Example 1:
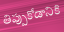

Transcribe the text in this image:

తిప్పుకోడానికి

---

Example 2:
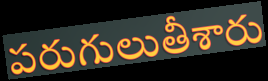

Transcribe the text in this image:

పరుగులుతీశారు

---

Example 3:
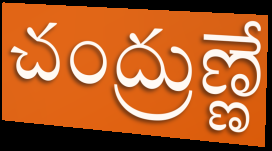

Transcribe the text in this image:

చంద్రుణ్ణే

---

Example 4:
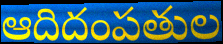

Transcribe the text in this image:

ఆదిదంపతుల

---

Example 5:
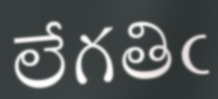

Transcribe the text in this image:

లేగతిఁ